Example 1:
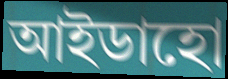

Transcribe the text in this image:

আইডাহো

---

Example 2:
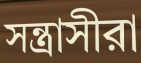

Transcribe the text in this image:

সন্ত্রাসীরা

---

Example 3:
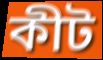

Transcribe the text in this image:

কীট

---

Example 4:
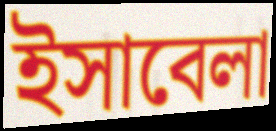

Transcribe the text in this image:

ইসাবেলা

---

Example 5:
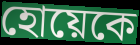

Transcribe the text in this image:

হোয়েকে